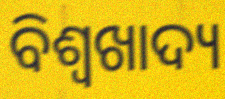
ବିଶ୍ୱଖାଦ୍ୟ